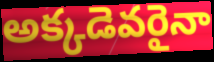
అక్కడెవరైనా